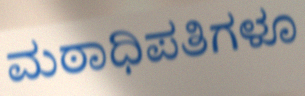
ಮಠಾಧಿಪತಿಗಳೂ